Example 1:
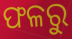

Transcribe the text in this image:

ଫଳରୁ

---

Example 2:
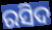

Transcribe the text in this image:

ରସିଦ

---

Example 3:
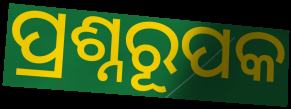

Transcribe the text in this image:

ପ୍ରଶ୍ନରୂପକ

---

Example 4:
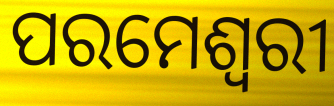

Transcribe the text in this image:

ପରମେଶ୍ୱରୀ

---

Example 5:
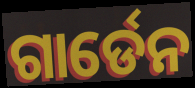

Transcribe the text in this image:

ଗାର୍ଡେନ